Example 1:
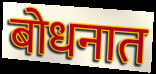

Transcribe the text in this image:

बोधनात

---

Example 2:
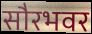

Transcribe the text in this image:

सौरभवर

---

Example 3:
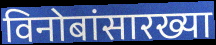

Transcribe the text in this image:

विनोबांसारख्या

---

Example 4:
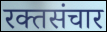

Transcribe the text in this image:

रक्तसंचार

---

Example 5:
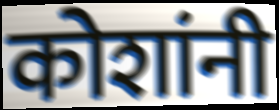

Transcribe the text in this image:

कोशांनी